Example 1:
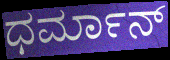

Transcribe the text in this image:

ಧರ್ಮಾನ್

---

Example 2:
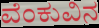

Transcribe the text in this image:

ವೆಂಕುವಿನ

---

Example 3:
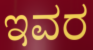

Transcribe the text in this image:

ಇವರ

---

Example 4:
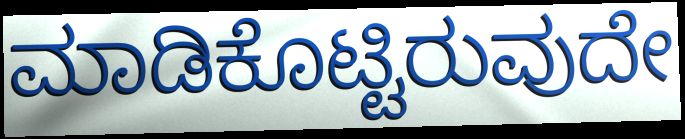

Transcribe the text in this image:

ಮಾಡಿಕೊಟ್ಟಿರುವುದೇ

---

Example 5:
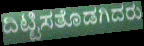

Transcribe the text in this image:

ದಿಟ್ಟಿಸತೊಡಗಿದರು